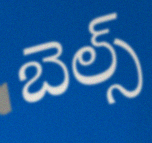
బెల్స్